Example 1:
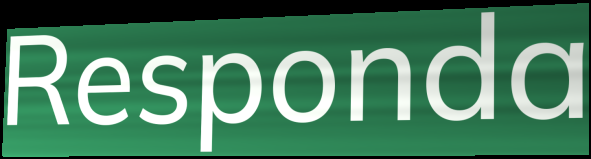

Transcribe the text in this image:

Responda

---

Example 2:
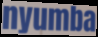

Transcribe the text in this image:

nyumba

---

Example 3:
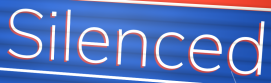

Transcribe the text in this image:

Silenced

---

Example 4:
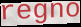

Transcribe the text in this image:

regno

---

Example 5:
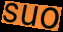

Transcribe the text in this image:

suo